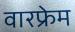
वारफ्रेम